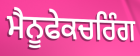
ਮੈਨੂਫੇਕਚਰਿੰਗ